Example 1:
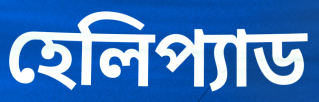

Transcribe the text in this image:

হেলিপ্যাড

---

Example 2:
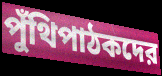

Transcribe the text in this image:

পুঁথিপাঠকদের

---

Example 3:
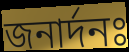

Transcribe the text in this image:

জনার্দনঃ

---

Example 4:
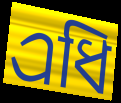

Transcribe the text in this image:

এধি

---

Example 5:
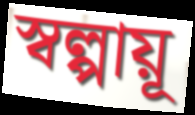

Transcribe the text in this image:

স্বল্পায়ূ